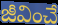
జీవించే